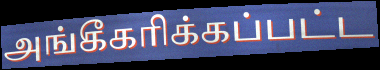
அங்கீகரிக்கப்பட்ட